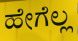
ಹೇಗೆಲ್ಲ